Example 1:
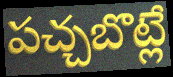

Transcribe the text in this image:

పచ్చబొట్లే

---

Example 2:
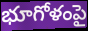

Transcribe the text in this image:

భూగోళంపై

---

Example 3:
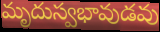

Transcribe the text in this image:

మృదుస్వభావుడవు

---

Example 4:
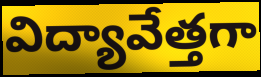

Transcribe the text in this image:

విద్యావేత్తగా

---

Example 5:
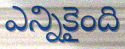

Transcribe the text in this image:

ఎన్నికైంది